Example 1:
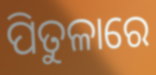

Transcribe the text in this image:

ପିତୁଳାରେ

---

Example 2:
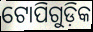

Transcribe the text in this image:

ଟୋପିଗୁଡ଼ିକ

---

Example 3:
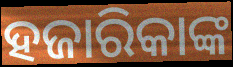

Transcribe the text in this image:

ହଜାରିକାଙ୍କ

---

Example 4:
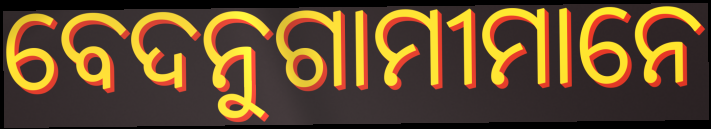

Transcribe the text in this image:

ବେଦନୁଗାମୀମାନେ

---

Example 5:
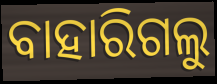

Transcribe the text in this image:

ବାହାରିଗଲୁ